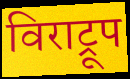
विराट्रूप